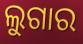
ଲୁଗାର